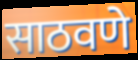
साठवणे